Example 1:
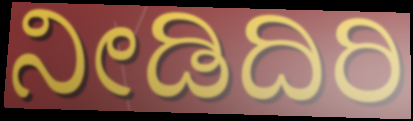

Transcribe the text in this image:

ನೀಡಿದಿರಿ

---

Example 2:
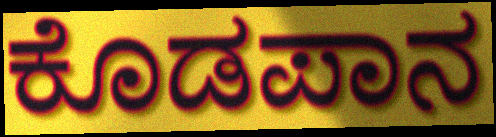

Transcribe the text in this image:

ಕೊಡಪಾನ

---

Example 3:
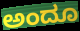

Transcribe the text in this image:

ಅಂದೂ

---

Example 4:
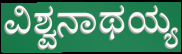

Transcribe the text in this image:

ವಿಶ್ವನಾಥಯ್ಯ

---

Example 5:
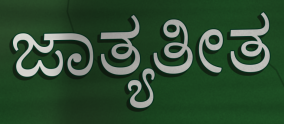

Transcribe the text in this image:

ಜಾತ್ಯತೀತ